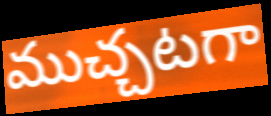
ముచ్చటగా